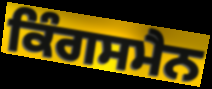
ਕਿੰਗਸਮੈਨ